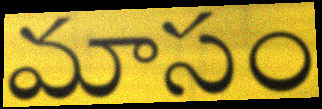
మాసం